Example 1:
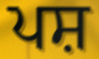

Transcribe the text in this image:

ਪਸ਼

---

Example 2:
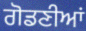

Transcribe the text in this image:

ਗੋਡਣੀਆਂ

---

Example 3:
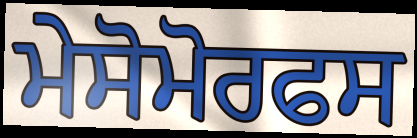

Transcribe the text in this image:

ਮੇਸੋਮੋਰਫਸ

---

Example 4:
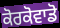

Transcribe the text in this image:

ਕੋਰਕੋਵਾਡੋ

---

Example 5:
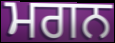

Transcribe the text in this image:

ਮਗਨ